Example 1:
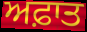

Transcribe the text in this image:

ਅਫ਼ਾਤ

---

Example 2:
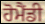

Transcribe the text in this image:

ਹੋਮੈਂਡੀ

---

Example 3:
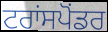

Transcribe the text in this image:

ਟਰਾਂਸਪੋਂਡਰ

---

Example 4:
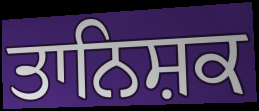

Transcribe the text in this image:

ਤਾਨਿਸ਼ਕ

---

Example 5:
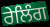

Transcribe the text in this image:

ਰੇਲਿੰਗ